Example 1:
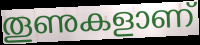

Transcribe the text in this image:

തൂണുകളാണ്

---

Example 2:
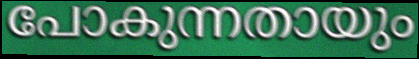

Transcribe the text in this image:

പോകുന്നതായും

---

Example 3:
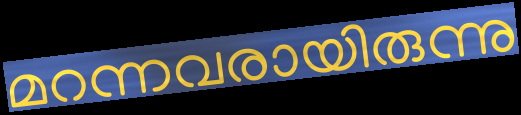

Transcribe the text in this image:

മറന്നവരായിരുന്നു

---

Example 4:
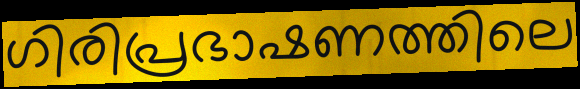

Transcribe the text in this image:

ഗിരിപ്രഭാഷണത്തിലെ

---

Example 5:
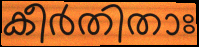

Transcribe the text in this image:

കീർതിതാഃ